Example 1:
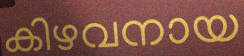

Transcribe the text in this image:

കിഴവനായ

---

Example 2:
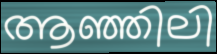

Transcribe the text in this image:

ആഞ്ഞിലി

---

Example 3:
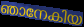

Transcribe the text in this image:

ഞാനേകിയ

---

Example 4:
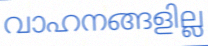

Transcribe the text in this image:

വാഹനങ്ങളില്ല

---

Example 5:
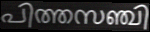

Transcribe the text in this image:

പിത്തസഞ്ചി